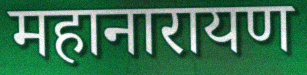
महानारायण